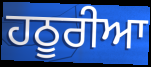
ਹਠੂਰੀਆ